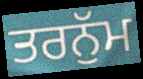
ਤਰਨੁੱਮ